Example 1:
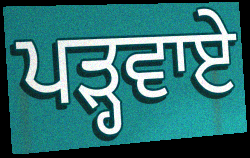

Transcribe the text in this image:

ਪੜ੍ਹਵਾਏ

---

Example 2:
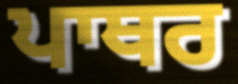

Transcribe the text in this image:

ਪਾਥਰ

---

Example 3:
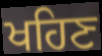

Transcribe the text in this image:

ਖਹਿਣ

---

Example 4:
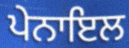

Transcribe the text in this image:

ਪੇਨਾਇਲ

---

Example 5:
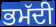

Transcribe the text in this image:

ਭਮੱਦੀ